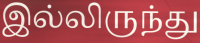
இல்லிருந்து